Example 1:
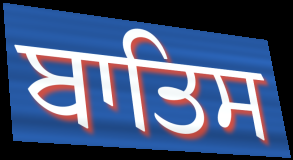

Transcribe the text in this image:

ਬਾਤਿਸ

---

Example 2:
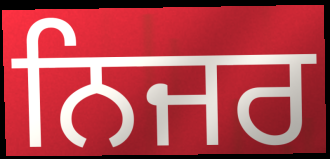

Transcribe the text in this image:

ਨਿਜਰ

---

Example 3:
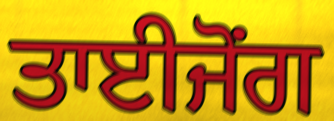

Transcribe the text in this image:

ਤਾਈਜੋਂਗ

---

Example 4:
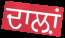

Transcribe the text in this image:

ਦਾਲ਼ਾਂ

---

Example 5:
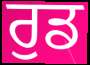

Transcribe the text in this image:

ਰੁਡ